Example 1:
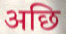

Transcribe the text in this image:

अछि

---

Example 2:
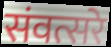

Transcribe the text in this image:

संवत्सरे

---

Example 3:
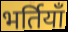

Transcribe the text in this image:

भर्तियाँ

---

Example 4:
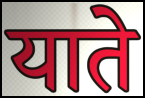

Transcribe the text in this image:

याते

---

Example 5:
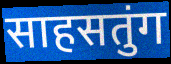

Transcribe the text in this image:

साहसतुंग